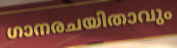
ഗാനരചയിതാവും